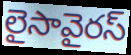
లైసావైరస్